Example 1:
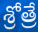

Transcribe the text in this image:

శ్రోత్రే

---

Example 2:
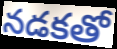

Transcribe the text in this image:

నడకతో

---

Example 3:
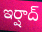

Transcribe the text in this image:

ఇర్షాద్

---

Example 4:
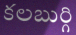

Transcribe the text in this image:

కలబుర్గి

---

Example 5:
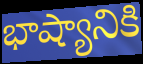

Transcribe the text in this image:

భాష్యానికి